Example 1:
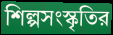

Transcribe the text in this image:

শিল্পসংস্কৃতির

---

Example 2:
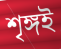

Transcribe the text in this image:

শৃঙ্গই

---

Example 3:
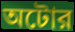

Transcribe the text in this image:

অটোর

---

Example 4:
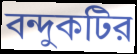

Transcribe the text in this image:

বন্দুকটির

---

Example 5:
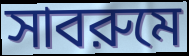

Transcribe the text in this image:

সাবরুমে